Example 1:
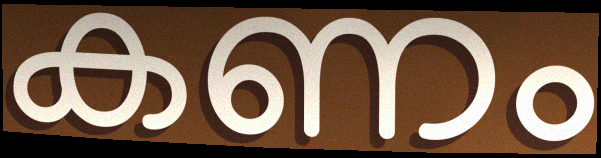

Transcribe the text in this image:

കണം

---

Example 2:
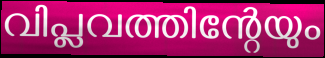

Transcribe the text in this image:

വിപ്ലവത്തിന്റേയും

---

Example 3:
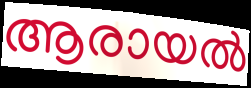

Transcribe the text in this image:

ആരായൽ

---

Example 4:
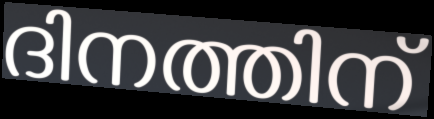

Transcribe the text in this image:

ദിനത്തിന്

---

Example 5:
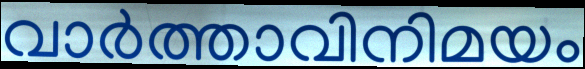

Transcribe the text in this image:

വാർത്താവിനിമയം